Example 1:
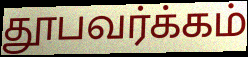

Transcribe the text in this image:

தூபவர்க்கம்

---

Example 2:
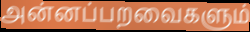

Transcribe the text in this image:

அன்னப்பறவைகளும்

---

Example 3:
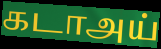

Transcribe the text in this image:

கடாஅய்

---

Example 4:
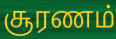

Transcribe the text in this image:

சூரணம்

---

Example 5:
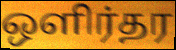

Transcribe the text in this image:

ஒளிர்தர